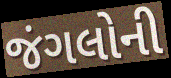
જંગલોની